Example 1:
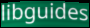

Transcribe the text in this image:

libguides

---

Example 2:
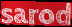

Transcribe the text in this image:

sarod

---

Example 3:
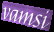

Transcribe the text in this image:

vamsi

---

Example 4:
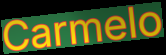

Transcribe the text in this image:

Carmelo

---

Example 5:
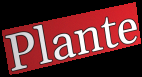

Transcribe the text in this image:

Plante